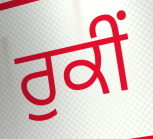
ਰੁਕੀਂ